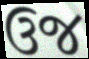
ઉજ